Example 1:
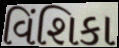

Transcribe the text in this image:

વિંશિકા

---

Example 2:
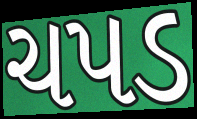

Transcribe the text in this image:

ચપડ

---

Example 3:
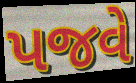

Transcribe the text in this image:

પજવે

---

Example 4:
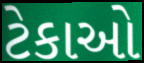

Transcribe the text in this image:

ટેકાઓ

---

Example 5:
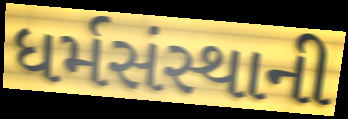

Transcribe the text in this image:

ધર્મસંસ્થાની